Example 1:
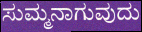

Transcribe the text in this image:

ಸುಮ್ಮನಾಗುವುದು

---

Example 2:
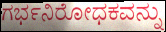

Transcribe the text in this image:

ಗರ್ಭನಿರೋಧಕವನ್ನು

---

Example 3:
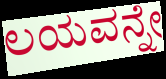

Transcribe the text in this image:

ಲಯವನ್ನೇ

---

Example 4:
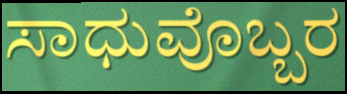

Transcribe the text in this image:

ಸಾಧುವೊಬ್ಬರ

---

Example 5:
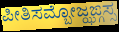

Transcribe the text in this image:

ಪೀತಿಸಮ್ಬೋಜ್ಝಙ್ಗಸ್ಸ